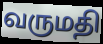
வருமதி